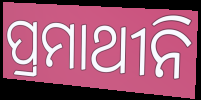
ପ୍ରମାଥୀନି